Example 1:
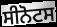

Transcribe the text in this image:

ਸੀਨੋਟਸ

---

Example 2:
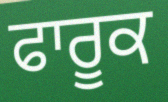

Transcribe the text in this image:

ਫਾਰੂਕ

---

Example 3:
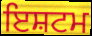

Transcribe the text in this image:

ਇਸ਼ਟਮ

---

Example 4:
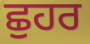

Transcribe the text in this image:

ਛੁਹਰ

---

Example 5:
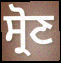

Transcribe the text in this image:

ਸ੍ਰੋਣ